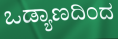
ಒಡ್ಯಾಣದಿಂದ